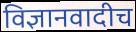
विज्ञानवादीच